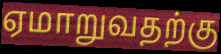
ஏமாறுவதற்கு